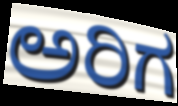
ಅರಿಗ